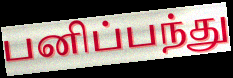
பனிப்பந்து